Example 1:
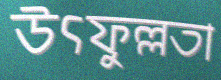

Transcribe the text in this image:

উৎফুল্লতা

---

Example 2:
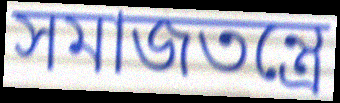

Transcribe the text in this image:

সমাজতন্ত্রে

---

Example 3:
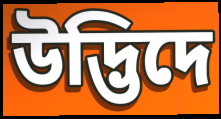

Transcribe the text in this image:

উদ্ভিদে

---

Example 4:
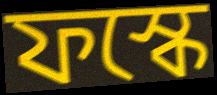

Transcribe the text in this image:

ফস্কে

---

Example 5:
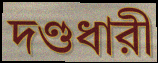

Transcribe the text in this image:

দণ্ডধারী